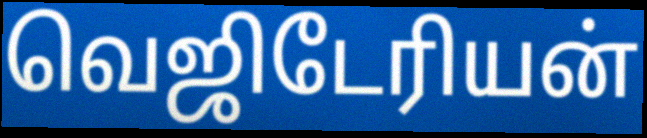
வெஜிடேரியன்